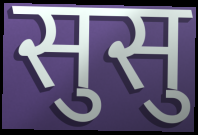
सुसु